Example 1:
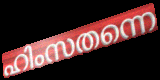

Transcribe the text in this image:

ഹിംസതന്നെ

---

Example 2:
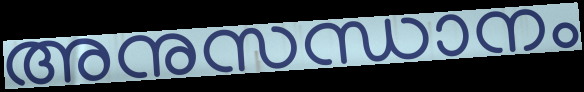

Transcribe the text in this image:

അനുസന്ധാനം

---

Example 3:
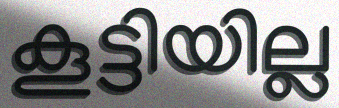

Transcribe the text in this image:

കൂട്ടിയില്ല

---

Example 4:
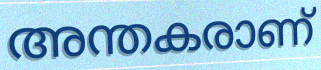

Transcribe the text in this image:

അന്തകരാണ്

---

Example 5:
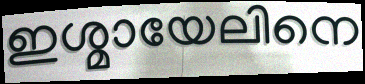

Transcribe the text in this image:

ഇശ്മായേലിനെ